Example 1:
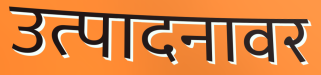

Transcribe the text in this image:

उत्पादनावर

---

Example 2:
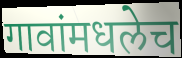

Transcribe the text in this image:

गावांमधलेच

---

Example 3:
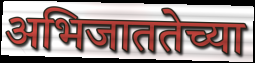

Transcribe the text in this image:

अभिजाततेच्या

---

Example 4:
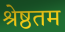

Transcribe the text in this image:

श्रेष्ठतम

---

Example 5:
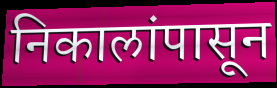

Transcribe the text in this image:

निकालांपासून